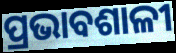
ପ୍ରଭାବଶାଳୀ